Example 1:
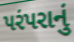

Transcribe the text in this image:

પરંપરાનું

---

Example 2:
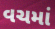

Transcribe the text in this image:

વચમાં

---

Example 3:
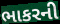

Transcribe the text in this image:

ભાકરની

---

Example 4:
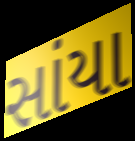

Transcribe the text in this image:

સાંયા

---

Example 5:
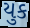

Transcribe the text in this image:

યુક